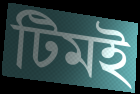
টিমই